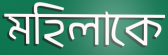
মহিলাকে